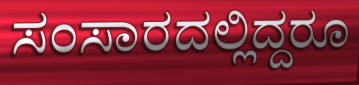
ಸಂಸಾರದಲ್ಲಿದ್ದರೂ